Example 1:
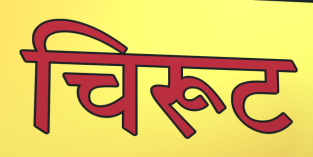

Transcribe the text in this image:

चिरूट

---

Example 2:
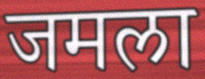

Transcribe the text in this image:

जमला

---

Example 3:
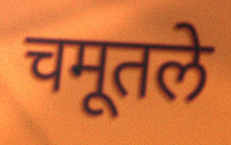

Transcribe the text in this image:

चमूतले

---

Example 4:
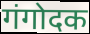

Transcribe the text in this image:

गंगोदक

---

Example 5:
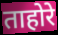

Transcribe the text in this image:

ताहोरे